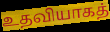
உதவியாகத்